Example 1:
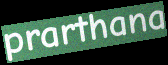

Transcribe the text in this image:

prarthana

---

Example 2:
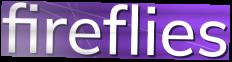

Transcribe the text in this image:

fireflies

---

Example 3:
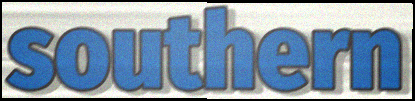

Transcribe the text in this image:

southern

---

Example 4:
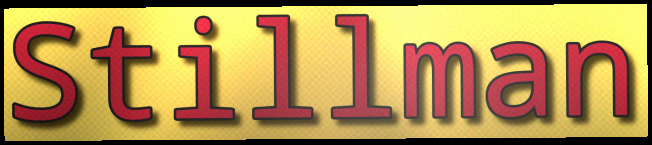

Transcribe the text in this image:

Stillman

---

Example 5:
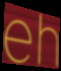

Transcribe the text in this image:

eh